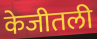
केजीतली